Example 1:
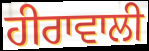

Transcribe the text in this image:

ਹੀਰਾਵਾਲੀ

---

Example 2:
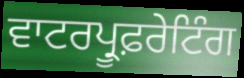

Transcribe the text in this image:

ਵਾਟਰਪ੍ਰੂਫ਼ਰੇਟਿੰਗ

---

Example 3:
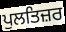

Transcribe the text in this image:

ਪੁਲਤਿਜ਼ਰ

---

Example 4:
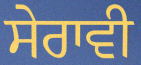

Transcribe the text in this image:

ਸੇਰਾਵੀ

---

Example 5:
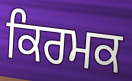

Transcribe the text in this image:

ਕਿਰਮਕ